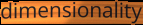
dimensionality